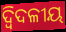
ଦ୍ବିଦଳୀୟ